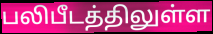
பலிபீடத்திலுள்ள